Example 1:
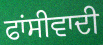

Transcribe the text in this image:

ਫਾਂਸੀਵਾਦੀ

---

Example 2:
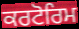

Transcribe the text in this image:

ਕਰਟੋਰਿਮ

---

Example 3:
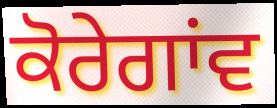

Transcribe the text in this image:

ਕੋਰੇਗਾਂਵ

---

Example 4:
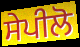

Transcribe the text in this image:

ਸੇਪੀਲੋ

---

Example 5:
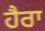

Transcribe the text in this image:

ਹੈਰਾ